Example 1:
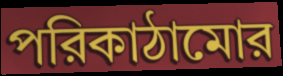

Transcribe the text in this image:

পরিকাঠামোর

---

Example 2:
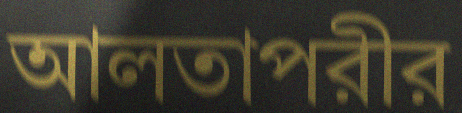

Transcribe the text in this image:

আলতাপরীর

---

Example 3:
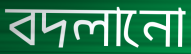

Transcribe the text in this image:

বদলানো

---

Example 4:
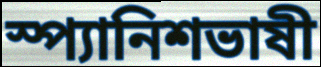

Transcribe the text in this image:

স্প্যানিশভাষী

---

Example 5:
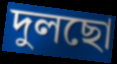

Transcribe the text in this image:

দুলছো